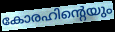
കോരഹിന്റെയും